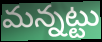
మన్నట్టు